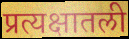
प्रत्यक्षातली